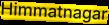
Himmatnagar